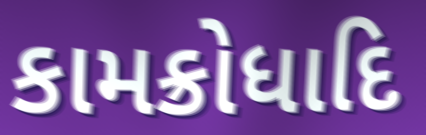
કામક્રોધાદિ